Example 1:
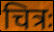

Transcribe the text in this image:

चित्रः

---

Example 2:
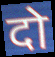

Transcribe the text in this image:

दो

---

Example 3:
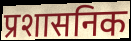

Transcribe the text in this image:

प्रशासनिक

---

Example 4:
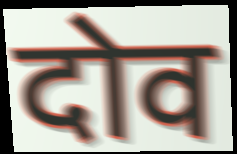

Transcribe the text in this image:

दोव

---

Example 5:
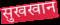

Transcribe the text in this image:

सुखखान